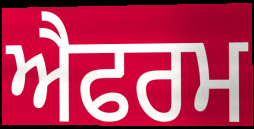
ਐਫਰਮ